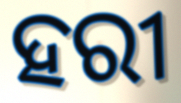
ହରୀ